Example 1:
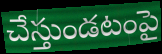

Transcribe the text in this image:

చేస్తుండటంపై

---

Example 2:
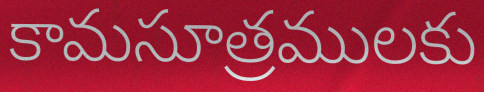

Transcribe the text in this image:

కామసూత్రములకు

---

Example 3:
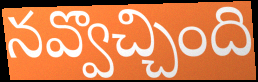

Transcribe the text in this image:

నవ్వొచ్చింది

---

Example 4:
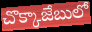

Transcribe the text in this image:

చొక్కాజేబులో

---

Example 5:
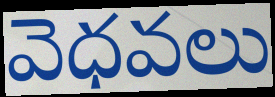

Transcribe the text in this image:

వెధవలు